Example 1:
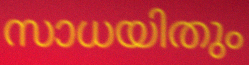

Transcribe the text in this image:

സാധയിതും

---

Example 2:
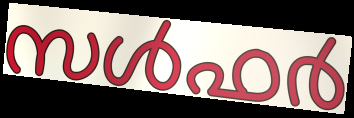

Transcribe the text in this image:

സൾഫർ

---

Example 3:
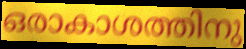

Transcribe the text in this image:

ഒരാകാശത്തിനു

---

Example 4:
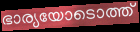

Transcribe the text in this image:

ഭാര്യയോടൊത്ത്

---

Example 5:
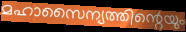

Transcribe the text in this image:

മഹാസൈന്യത്തിന്റെയും